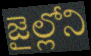
జైల్లోని